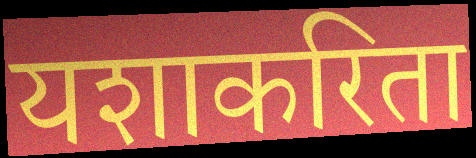
यशाकरिता